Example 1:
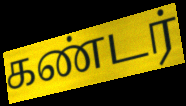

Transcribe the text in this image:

கண்டர்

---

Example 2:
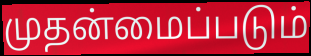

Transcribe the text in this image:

முதன்மைப்படும்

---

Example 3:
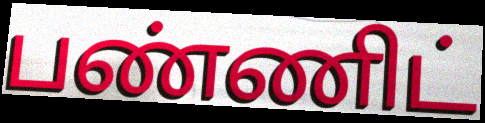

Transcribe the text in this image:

பண்ணிட்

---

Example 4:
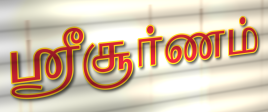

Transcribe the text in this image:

ஸ்ரீசூர்ணம்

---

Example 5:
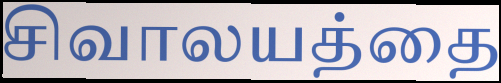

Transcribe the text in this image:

சிவாலயத்தை